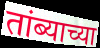
तांब्याच्या